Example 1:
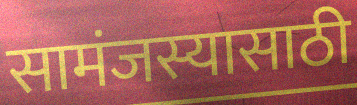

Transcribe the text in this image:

सामंजस्यासाठी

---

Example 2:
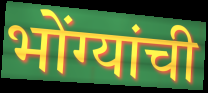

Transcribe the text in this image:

भोंग्यांची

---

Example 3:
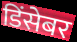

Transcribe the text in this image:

डिंसेबर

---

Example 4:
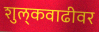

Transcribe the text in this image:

शुल्कवाढीवर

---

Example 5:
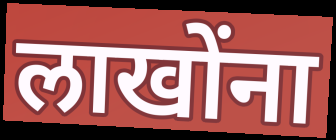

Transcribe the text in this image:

लाखोंना